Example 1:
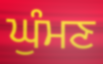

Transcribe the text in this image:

ਘੁੰਮਣ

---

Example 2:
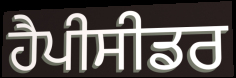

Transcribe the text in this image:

ਹੈਪੀਸੀਡਰ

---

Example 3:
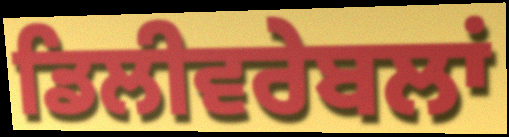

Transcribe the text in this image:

ਡਿਲੀਵਰੇਬਲਾਂ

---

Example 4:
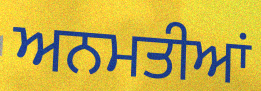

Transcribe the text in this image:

ਅਨਮਤੀਆਂ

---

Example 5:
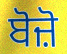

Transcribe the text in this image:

ਬੋਜ਼ੋ